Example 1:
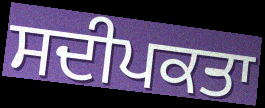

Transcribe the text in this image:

ਸਦੀਪਕਤਾ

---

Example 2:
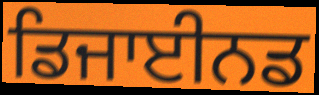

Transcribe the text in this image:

ਡਿਜਾਈਨਡ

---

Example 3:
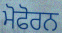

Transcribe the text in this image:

ਮੋਫੋਰਨ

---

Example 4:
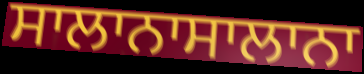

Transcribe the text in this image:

ਸਾਲਾਨਾਸਾਲਾਨਾ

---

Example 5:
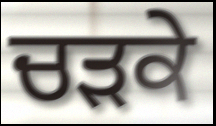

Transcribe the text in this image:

ਚੜਕੇ